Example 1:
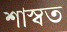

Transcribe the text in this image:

শাস্বত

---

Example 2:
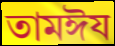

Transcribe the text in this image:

তামঈয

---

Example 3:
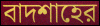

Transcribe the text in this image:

বাদশাহের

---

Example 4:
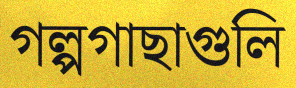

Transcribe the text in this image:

গল্পগাছাগুলি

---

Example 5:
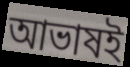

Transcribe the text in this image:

আভাষই